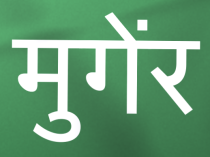
मुगेंर